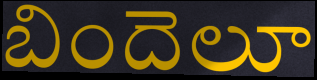
బిందెలూ